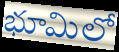
భూమిలో